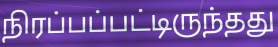
நிரப்பப்பட்டிருந்தது